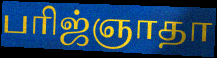
பரிஜ்ஞாதா